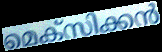
മെക്സിക്കൻ